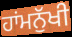
ਹਾਂਮਨੁੱਖੀ